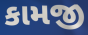
કામજી